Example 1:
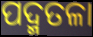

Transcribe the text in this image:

ପଦ୍ମତଳା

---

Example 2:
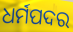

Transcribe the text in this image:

ଧର୍ମପଦର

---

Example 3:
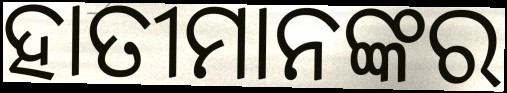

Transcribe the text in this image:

ହାତୀମାନଙ୍କର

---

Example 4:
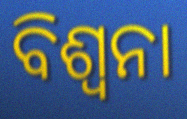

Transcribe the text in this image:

ବିଶ୍ୱନା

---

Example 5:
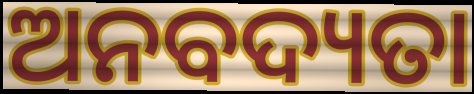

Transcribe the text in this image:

ଅନବଦ୍ୟତା